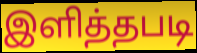
இளித்தபடி